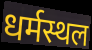
धर्मस्थल